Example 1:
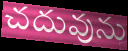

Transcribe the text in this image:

చదువును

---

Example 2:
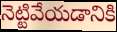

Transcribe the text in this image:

నెట్టివేయడానికి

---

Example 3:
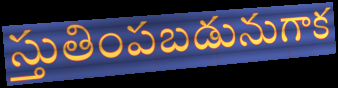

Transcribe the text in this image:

స్తుతింపబడునుగాక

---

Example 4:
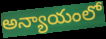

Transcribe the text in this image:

అన్యాయంలో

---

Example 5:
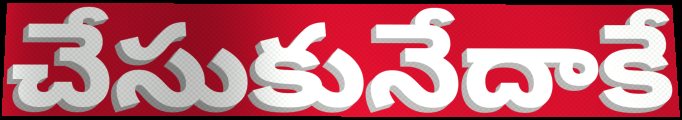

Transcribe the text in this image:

చేసుకునేదాకే